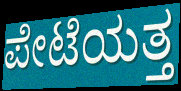
ಪೇಟೆಯತ್ತ